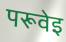
परूवेइ